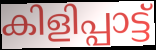
കിളിപ്പാട്ട്